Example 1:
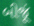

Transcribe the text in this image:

બીજૂં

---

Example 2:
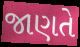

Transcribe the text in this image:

જાણતે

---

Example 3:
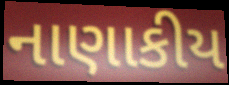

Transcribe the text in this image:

નાણાકીય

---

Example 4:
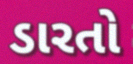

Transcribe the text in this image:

ડારતો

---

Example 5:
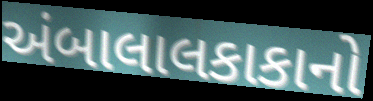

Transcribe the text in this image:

અંબાલાલકાકાનો